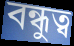
বন্ধুত্ব